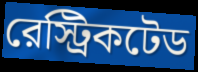
রেস্ট্রিকটেড